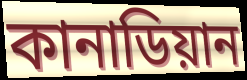
কানাডিয়ান